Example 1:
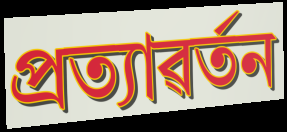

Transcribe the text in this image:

প্ৰত্যাৱৰ্তন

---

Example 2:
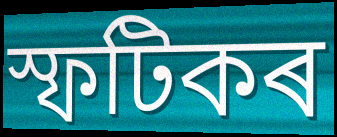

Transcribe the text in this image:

স্ফটিকৰ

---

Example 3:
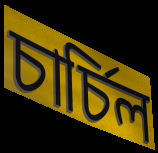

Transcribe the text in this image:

চাৰ্চিল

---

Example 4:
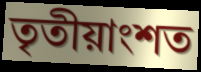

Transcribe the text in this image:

তৃতীয়াংশত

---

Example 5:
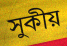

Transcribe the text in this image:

সুকীয়